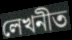
লেখনীত